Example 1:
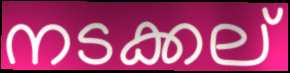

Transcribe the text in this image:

നടക്കല്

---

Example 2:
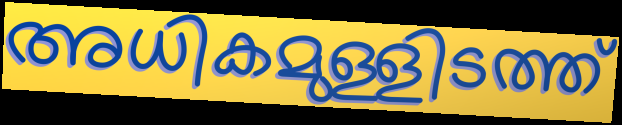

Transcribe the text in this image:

അധികമുള്ളിടത്ത്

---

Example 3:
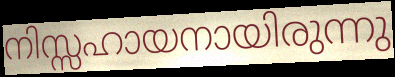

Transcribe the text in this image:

നിസ്സഹായനായിരുന്നു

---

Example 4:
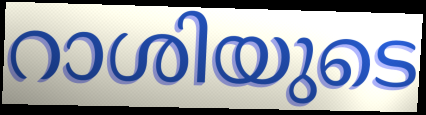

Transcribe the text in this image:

റാശിയുടെ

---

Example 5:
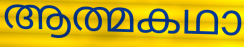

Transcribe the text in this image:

ആത്മകഥാ